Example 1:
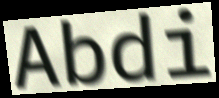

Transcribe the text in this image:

Abdi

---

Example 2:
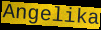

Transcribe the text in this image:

Angelika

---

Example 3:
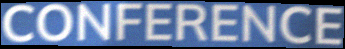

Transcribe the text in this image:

CONFERENCE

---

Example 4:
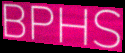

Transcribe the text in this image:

BPHS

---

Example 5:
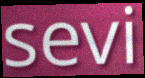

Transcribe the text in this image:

sevi